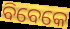
ବିବେକେ